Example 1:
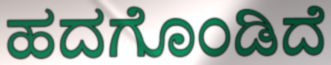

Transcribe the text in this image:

ಹದಗೊಂಡಿದೆ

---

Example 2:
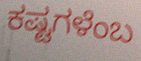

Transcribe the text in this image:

ಕಷ್ಟಗಳೆಂಬ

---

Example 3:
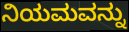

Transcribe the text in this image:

ನಿಯಮವನ್ನು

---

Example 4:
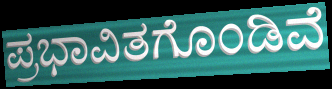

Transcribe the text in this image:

ಪ್ರಭಾವಿತಗೊಂಡಿವೆ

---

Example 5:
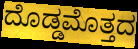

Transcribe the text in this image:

ದೊಡ್ಡಮೊತ್ತದ